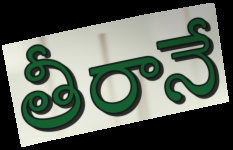
తీరానే